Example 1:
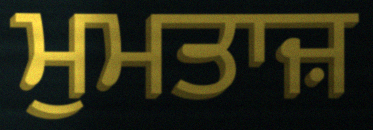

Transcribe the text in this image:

ਮੁਮਤਾਜ਼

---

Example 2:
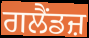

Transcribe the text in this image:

ਗਲੈਂਡਜ਼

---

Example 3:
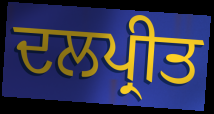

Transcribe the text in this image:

ਦਲਪ੍ਰੀਤ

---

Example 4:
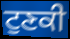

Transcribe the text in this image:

ਟੁਣਕੀ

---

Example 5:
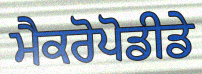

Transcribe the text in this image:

ਮੈਕਰੋਪੋਡੀਡੇ